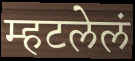
म्हटलेलं